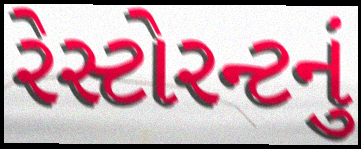
રેસ્ટોરન્ટનું